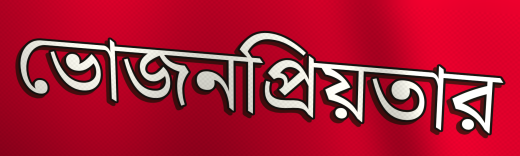
ভোজনপ্রিয়তার